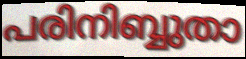
പരിനിബ്ബുതാ